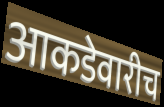
आकडेवारीच